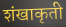
शंखाकृती